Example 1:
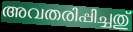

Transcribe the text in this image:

അവതരിപ്പിച്ചതു്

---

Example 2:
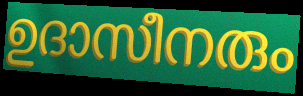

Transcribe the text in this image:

ഉദാസീനരും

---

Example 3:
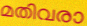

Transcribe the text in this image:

മതിവരാ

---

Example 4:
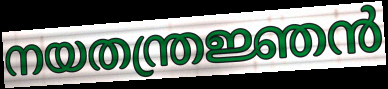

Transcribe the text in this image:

നയതന്ത്രജ്ഞൻ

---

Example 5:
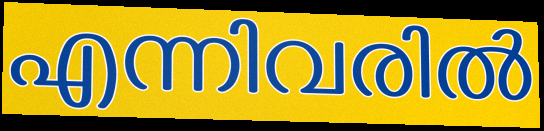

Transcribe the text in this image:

എന്നിവരിൽ